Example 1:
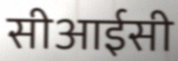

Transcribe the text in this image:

सीआईसी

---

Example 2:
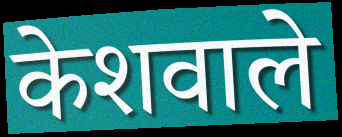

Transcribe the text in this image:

केशवाले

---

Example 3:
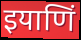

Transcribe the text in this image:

इयाणिं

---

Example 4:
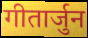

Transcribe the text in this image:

गीतार्जुन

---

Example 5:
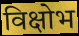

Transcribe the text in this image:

विक्षोभ